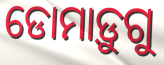
ଡୋମାଡ଼ୁଗୁ